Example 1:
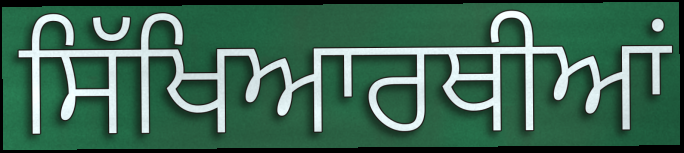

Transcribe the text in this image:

ਸਿੱਖਿਆਰਥੀਆਂ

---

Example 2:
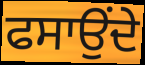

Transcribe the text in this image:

ਫਸਾਉਂਦੇ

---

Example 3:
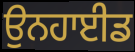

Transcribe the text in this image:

ਉਨਹਾਈਡ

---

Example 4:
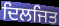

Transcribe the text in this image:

ਦਿਲਜਿਤ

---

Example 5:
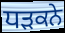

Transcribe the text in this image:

ਧਡ਼ਕਨੇ